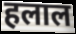
हलाल